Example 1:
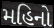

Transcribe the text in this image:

મહિનો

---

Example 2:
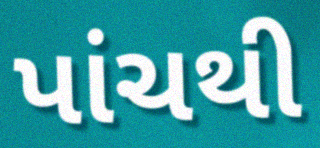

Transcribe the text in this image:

પાંચથી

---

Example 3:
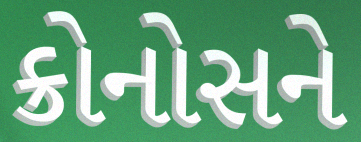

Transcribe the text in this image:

ક્રોનોસને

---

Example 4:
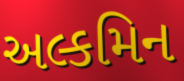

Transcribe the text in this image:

અલ્કમિન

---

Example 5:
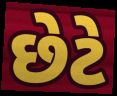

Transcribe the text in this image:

છેટે